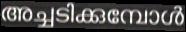
അച്ചടിക്കുമ്പോൾ